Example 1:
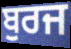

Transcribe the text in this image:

ਬੁਰਜ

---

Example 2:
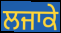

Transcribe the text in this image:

ਲਜਾਕੇ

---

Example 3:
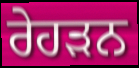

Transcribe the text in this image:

ਰੇਹੜਨ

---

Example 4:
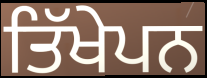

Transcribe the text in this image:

ਤਿੱਖੇਪਨ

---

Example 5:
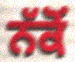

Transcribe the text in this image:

ਨੱਕੋਂ